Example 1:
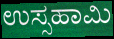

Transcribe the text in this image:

ಉಸ್ಸಹಾಮಿ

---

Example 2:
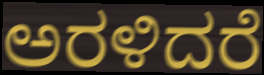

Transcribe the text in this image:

ಅರಳಿದರೆ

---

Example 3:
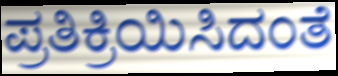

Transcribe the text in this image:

ಪ್ರತಿಕ್ರಿಯಿಸಿದಂತೆ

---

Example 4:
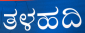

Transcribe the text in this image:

ತಳಹದಿ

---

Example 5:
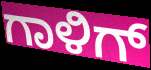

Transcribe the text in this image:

ಗಾಳಿಗ್